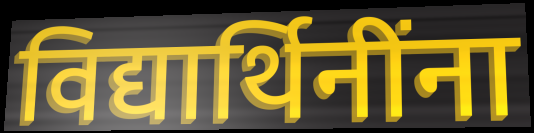
विद्यार्थिनींना